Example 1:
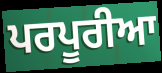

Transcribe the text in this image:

ਪਰਪੂਰੀਆ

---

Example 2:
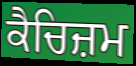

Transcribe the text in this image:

ਕੈਚਿਜ਼ਮ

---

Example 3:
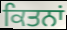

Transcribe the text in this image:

ਕਿਤਨਾਂ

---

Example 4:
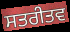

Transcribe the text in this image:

ਸਤਰੀਤਵ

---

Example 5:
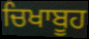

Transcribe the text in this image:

ਚਿਖਾਬੂਹ